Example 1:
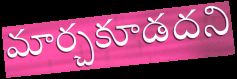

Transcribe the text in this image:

మార్చకూడదని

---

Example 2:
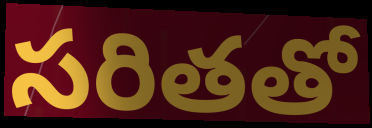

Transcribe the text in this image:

సరితతో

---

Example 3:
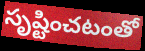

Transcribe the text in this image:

సృష్టించటంతో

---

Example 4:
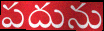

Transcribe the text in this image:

పదును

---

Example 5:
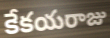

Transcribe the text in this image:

కేకయరాజు